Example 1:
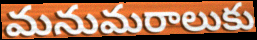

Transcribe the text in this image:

మనుమరాలుకు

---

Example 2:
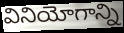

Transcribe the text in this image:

వినియోగాన్ని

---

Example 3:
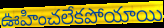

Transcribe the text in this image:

ఊహించలేకపోయాయి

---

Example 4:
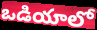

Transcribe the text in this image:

ఒడియాలో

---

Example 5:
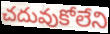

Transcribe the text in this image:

చదువుకోలేని